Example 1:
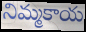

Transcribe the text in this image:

నిమ్మకాయ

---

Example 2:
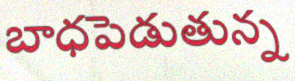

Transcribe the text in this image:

బాధపెడుతున్న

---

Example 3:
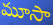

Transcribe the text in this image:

మూసా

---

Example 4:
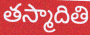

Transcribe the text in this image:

తస్మాదితి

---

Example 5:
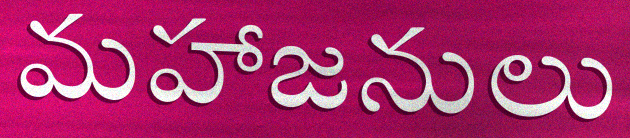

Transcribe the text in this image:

మహాజనులు